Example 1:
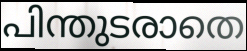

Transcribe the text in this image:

പിന്തുടരാതെ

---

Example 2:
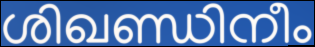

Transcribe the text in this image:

ശിഖണ്ഡിനീം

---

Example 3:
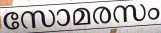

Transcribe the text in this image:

സോമരസം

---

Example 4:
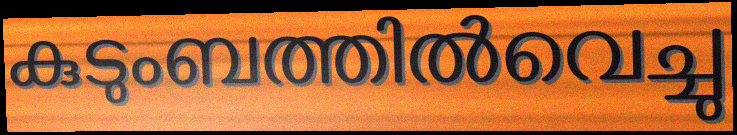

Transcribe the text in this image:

കുടുംബത്തിൽവെച്ചു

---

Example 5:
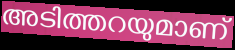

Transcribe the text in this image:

അടിത്തറയുമാണ്